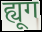
ह्यूग